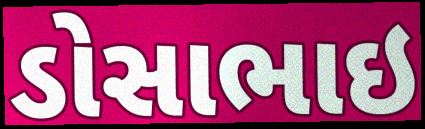
ડોસાભાઇ